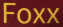
Foxx